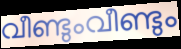
വീണ്ടുംവീണ്ടും